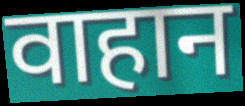
वाहान